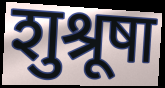
शुश्रूषा